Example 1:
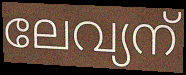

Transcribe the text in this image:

ലേവ്യന്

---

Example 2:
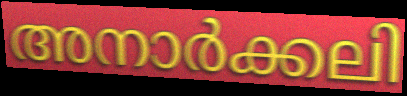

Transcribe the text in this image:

അനാർക്കലി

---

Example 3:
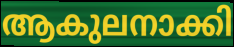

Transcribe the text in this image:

ആകുലനാക്കി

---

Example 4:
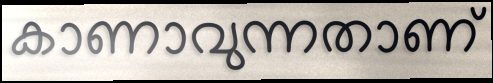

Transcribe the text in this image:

കാണാവുന്നതാണ്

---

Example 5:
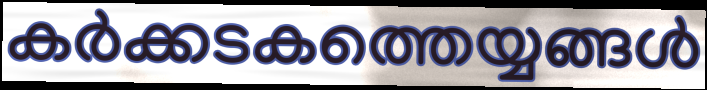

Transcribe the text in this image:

കർക്കടകത്തെയ്യങ്ങൾ